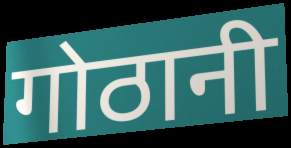
गोठानी